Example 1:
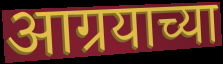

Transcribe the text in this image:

आग्रयाच्या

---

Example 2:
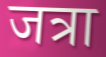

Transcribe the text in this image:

जत्रा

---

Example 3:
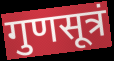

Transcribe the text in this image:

गुणसूत्रं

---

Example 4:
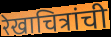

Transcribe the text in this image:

रेखाचित्रांची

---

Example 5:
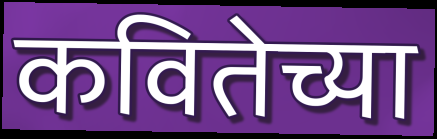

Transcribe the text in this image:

कवितेच्या